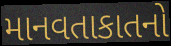
માનવતાકાતનો